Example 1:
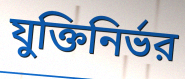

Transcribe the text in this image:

যুক্তিনির্ভর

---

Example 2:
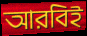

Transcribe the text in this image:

আরবিই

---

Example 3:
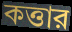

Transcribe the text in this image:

কত্তার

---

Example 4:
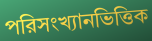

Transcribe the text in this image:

পরিসংখ্যানভিত্তিক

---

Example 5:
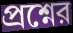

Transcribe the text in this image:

প্রশ্নের